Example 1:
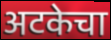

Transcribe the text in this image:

अटकेचा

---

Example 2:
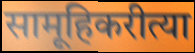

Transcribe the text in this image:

सामूहिकरीत्या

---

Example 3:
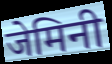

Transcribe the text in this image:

जेमिनी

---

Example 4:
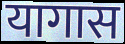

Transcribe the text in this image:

यागास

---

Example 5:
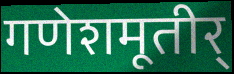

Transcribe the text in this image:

गणेशमूतीर्